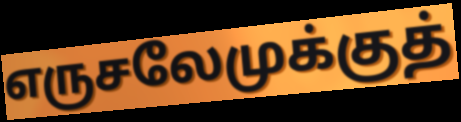
எருசலேமுக்குத்